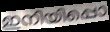
ഇനിയിപ്പൊ